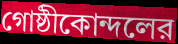
গোষ্ঠীকোন্দলের